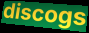
discogs